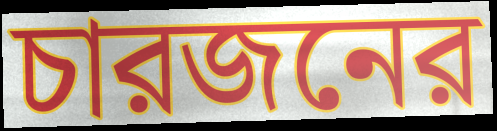
চারজনের